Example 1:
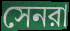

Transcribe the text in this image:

সেনরা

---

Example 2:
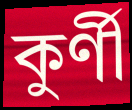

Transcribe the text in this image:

কুর্ণী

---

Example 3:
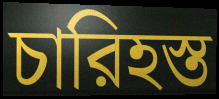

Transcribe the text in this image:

চারিহস্ত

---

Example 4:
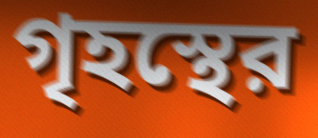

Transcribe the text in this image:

গৃহস্থের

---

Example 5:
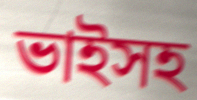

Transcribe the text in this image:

ভাইসহ